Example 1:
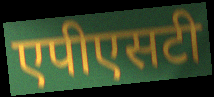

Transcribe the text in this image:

एपीएसटी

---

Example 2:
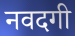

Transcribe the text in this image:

नवदगी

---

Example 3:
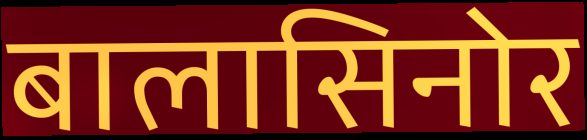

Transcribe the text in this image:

बालासिनोर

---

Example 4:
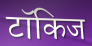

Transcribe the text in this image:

टॉकिज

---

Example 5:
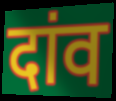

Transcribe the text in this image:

दांव